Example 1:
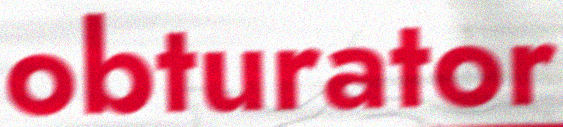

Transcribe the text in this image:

obturator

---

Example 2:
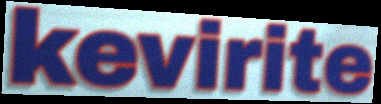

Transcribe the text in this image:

kevirite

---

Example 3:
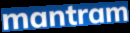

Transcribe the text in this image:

mantram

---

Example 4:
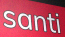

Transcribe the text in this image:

santi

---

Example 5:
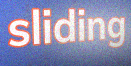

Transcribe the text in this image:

sliding